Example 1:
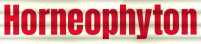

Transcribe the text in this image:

Horneophyton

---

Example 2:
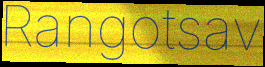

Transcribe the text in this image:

Rangotsav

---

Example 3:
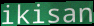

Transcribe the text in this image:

ikisan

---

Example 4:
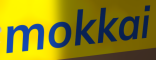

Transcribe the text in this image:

mokkai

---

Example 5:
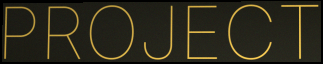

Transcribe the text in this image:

PROJECT